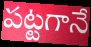
పట్టగానే